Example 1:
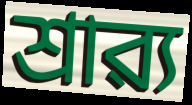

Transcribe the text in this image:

শ্ৰাৱ্য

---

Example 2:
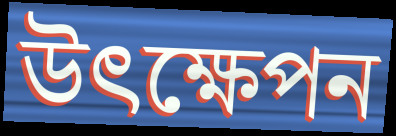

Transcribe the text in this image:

উৎক্ষেপন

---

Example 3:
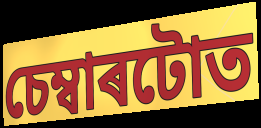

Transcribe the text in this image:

চেম্বাৰটোত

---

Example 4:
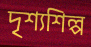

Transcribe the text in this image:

দৃশ্যশিল্প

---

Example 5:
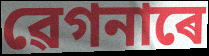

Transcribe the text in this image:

ৱেগনাৰে